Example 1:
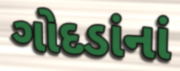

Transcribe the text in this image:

ગોદડાંનાં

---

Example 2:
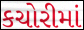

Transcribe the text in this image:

કચોરીમાં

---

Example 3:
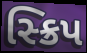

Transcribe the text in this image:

સ્ક્રિપ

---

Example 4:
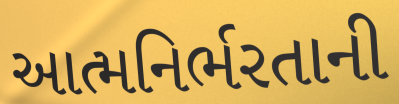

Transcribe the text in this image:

આત્મનિર્ભરતાની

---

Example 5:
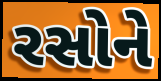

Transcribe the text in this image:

રસોને